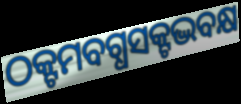
ଠକ୍ଟମବଗ୍ଧସକ୍ଟଦ୍ଭବକ୍ଷ